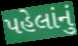
પહેલાંનું